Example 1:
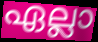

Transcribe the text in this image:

ഏല്ലാ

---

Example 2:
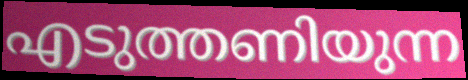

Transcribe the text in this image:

എടുത്തണിയുന്ന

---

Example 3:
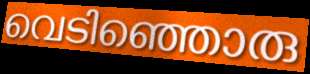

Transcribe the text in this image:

വെടിഞ്ഞൊരു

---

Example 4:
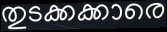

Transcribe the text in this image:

തുടക്കക്കാരെ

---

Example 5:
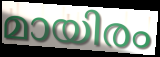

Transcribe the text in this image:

മായിരം